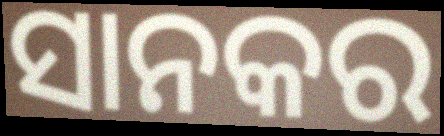
ସାନକର